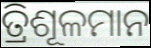
ତ୍ରିଶୂଳମାନ